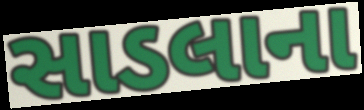
સાડલાના